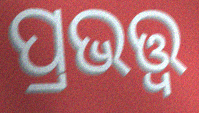
ପ୍ରଭତ୍ତ୍ଵ